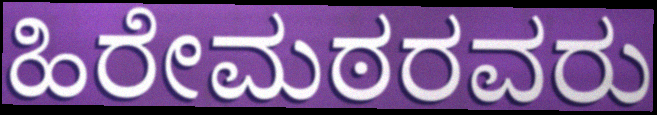
ಹಿರೇಮಠರವರು